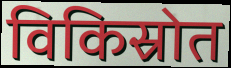
विकिस्रोत